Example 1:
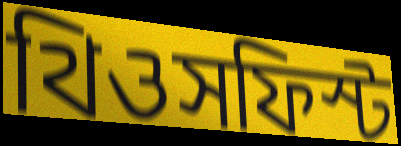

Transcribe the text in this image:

থিওসফিস্ট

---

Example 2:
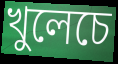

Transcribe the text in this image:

খুলেচে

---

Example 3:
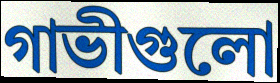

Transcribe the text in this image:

গাভীগুলো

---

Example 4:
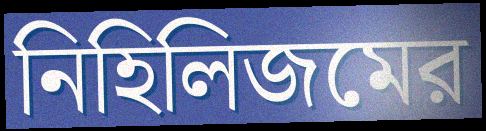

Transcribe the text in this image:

নিহিলিজমের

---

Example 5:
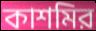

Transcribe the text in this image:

কাশমির